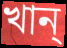
খান্